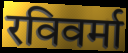
रविवर्मा